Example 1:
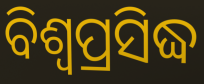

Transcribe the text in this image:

ବିଶ୍ଵପ୍ରସିଦ୍ଧ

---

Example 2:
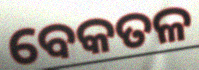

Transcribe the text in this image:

ବେକତଳ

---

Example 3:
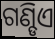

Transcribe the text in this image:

ଗଣ୍ଡିଏ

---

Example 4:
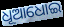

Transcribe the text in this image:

ଧୂଆଧୋଇ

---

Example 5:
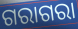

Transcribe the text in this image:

ଗରାଗରା